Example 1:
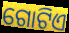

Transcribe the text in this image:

ଗୋଟିଏ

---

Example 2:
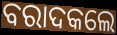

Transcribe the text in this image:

ବରାଦକଲେ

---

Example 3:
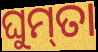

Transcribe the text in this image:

ଘୁମ୍‌ତା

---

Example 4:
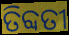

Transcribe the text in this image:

ତିବ୍ଦତୀ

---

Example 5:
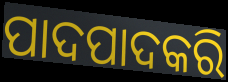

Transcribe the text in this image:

ପାଦପାଦକରି